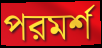
পরমর্শ